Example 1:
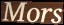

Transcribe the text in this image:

Mors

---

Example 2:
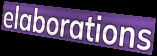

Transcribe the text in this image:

elaborations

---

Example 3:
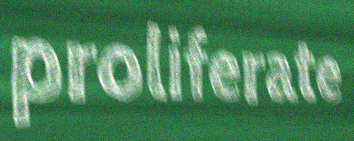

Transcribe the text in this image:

proliferate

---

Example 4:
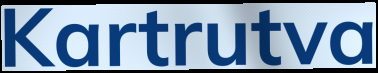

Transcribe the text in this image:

Kartrutva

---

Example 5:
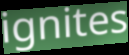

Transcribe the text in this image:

ignites